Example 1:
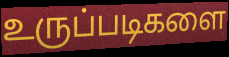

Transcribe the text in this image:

உருப்படிகளை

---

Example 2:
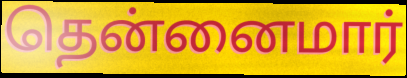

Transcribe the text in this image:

தென்னைமார்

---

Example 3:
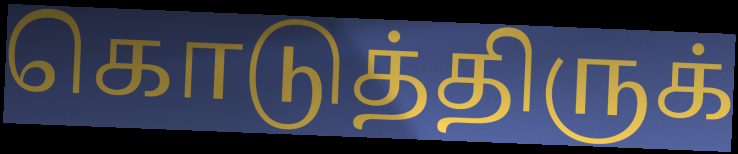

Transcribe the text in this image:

கொடுத்திருக்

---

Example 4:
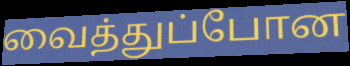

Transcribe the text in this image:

வைத்துப்போன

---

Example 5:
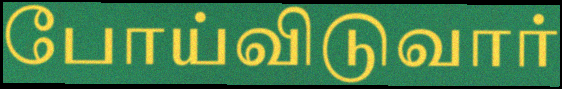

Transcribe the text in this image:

போய்விடுவார்